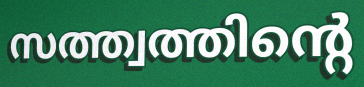
സത്ത്വത്തിന്റെ